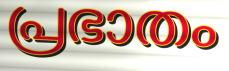
പ്രഭാതം